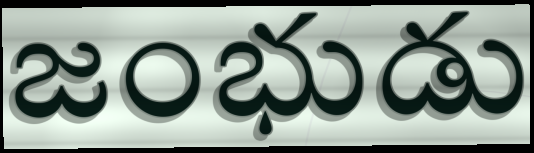
జంభుడు